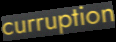
curruption